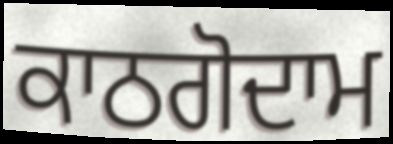
ਕਾਠਗੋਦਾਮ